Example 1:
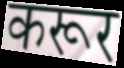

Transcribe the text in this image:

करूर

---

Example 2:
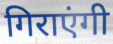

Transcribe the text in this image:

गिराएंगी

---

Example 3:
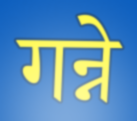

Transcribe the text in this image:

गन्ने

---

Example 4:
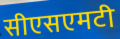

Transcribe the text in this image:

सीएसएमटी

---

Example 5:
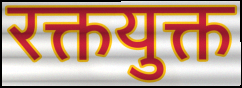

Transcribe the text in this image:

रक्तयुक्त